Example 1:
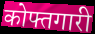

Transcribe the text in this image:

कोफ्तगारी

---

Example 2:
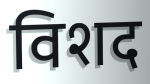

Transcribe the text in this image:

विशद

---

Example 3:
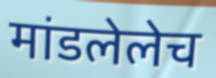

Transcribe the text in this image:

मांडलेलेच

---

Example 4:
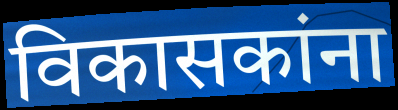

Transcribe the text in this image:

विकासकांना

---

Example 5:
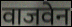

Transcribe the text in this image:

वाजवेन